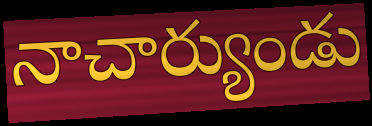
నాచార్యుండు